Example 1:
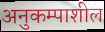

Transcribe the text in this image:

अनुकम्पाशील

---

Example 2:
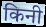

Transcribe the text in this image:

किनी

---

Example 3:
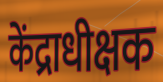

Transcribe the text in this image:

केंद्राधीक्षक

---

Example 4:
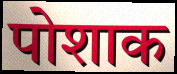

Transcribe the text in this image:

पोशाक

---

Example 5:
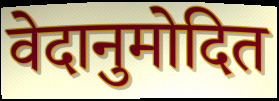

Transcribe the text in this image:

वेदानुमोदित